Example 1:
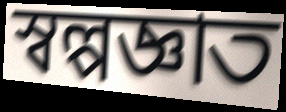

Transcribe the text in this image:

স্বল্পজ্ঞাত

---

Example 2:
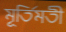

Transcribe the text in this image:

মূর্তিমতী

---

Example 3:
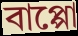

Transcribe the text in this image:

বাপ্পো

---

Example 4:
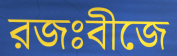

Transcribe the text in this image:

রজঃবীজে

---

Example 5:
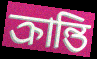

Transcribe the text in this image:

ক্রান্তি